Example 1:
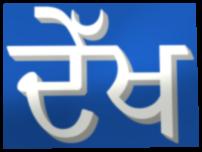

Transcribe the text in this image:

ਦੇੱਖ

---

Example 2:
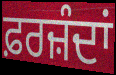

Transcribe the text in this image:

ਫ਼ਰਜ਼ੰਦਾਂ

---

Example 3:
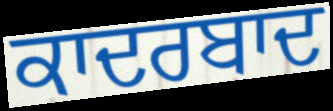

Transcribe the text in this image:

ਕਾਦਰਬਾਦ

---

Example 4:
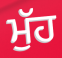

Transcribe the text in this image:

ਮੁੱਹ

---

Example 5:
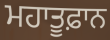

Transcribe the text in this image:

ਮਹਾਤੂਫ਼ਾਨ